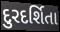
દુરદર્શિતા